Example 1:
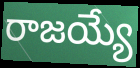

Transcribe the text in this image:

రాజయ్యే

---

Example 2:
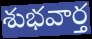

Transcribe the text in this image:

శుభవార్త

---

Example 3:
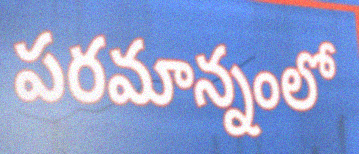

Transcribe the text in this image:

పరమాన్నంలో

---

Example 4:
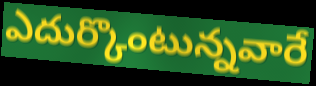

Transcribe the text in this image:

ఎదుర్కొంటున్నవారే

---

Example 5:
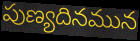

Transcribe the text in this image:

పుణ్యదినమున